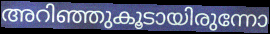
അറിഞ്ഞുകൂടായിരുന്നോ